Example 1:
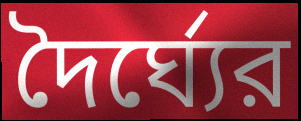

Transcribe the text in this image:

দৈর্ঘ্যের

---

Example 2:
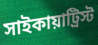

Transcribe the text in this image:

সাইকায়াট্রিস্ট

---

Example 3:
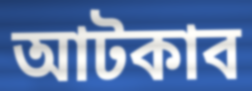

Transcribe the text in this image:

আটকাব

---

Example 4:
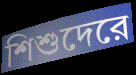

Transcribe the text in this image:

শিশুদেরে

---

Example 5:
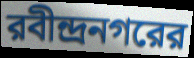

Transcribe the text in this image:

রবীন্দ্রনগরের